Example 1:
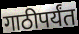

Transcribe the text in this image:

गाठीपर्यंत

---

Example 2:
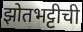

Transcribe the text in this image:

झोतभट्टीची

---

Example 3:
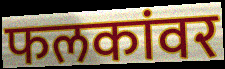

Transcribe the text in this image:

फलकांवर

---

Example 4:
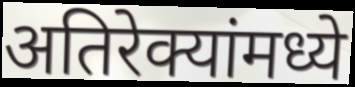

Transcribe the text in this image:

अतिरेक्यांमध्ये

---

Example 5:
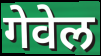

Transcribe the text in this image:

गेवेल